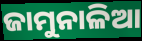
ଜାମୁନାଳିଆ